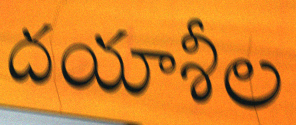
దయాశీల